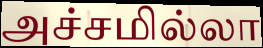
அச்சமில்லா